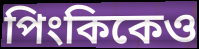
পিংকিকেও